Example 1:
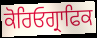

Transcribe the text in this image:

ਕੋਰਿਓਗ੍ਰਾਫਿਕ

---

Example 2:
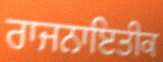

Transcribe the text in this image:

ਰਾਜਨਾਇਤੀਕ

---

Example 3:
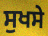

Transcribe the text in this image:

ਸੁਖਸੇ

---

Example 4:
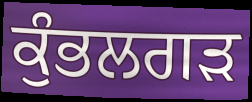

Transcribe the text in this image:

ਕੁੰਭਲਗੜ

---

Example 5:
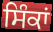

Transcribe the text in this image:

ਸਿੰਕਾਂ